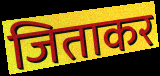
जिताकर